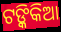
ଟଙ୍କିକିଆ